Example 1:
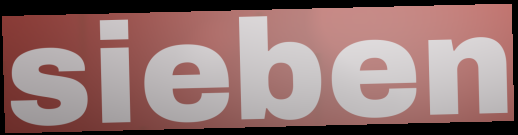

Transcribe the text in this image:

sieben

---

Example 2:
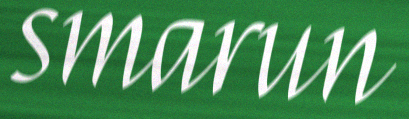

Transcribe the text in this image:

smarun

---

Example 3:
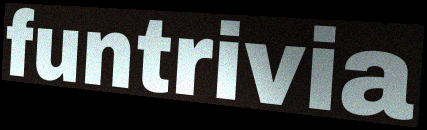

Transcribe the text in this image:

funtrivia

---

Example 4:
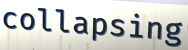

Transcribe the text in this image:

collapsing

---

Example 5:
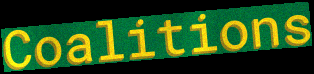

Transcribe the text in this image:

Coalitions